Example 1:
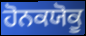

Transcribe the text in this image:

ਹੋਨਕਯੋਕੂ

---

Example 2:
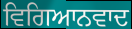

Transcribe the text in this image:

ਵਿਗਿਆਨਵਾਦ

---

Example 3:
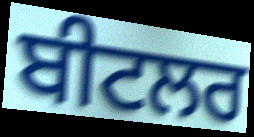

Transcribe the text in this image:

ਬੀਟਲਰ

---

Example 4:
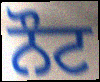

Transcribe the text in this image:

ਨੌਟ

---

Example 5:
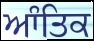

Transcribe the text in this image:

ਆੰਤਿਕ